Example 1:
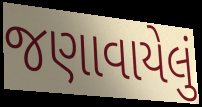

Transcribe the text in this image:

જણાવાયેલું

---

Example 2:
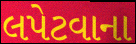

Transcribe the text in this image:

લપેટવાના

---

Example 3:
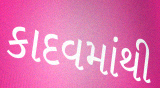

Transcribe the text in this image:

કાદવમાંથી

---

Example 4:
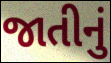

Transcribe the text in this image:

જાતીનું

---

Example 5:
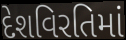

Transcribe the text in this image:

દેશવિરતિમાં